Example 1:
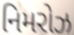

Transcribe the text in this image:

નિમરોઝ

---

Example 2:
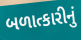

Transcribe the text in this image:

બળાત્કારીનું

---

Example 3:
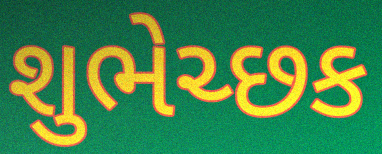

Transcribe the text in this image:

શુભેચ્છક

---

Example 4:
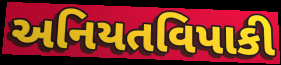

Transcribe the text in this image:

અનિયતવિપાકી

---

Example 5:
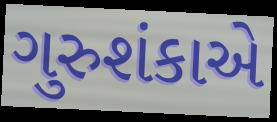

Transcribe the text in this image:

ગુરુશંકાએ